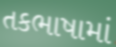
તકભાષામાં